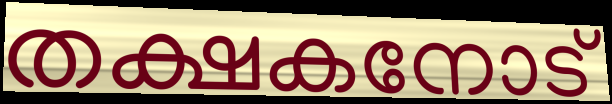
തക്ഷകനോട്